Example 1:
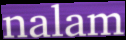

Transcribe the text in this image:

nalam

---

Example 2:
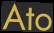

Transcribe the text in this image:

Ato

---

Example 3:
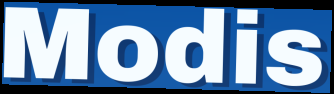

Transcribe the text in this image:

Modis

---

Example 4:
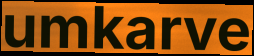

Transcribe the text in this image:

umkarve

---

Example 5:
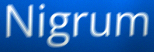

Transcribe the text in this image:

Nigrum